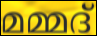
മമ്മദ്